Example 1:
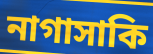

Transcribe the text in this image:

নাগাসাকি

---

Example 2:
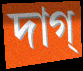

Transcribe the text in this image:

দাগ্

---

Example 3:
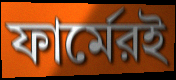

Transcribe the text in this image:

ফার্মেরই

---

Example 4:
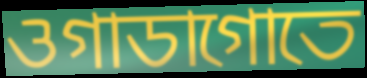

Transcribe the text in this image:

ওগাডাগোতে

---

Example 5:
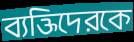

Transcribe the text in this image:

ব্যক্তিদেরকে